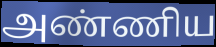
அண்ணிய